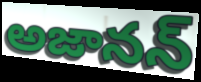
అజానన్